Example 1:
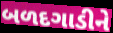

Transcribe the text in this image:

બળદગાડીને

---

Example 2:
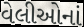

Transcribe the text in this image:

વેલીઓનાં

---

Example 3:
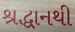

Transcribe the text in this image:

શ્રદ્ધાનથી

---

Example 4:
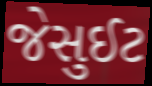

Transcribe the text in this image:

જેસુઈટ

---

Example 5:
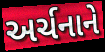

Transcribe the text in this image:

અર્ચનાને